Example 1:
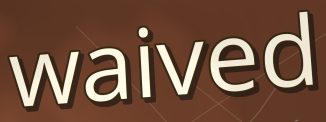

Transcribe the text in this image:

waived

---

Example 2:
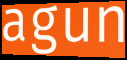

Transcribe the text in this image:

agun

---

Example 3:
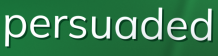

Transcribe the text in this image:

persuaded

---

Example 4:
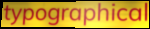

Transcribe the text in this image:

typographical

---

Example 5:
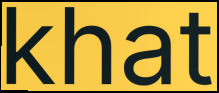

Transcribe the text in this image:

khat